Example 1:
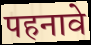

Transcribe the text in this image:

पहनावे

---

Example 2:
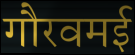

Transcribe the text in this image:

गौरवमई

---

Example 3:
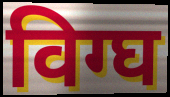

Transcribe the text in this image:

विग्घ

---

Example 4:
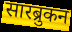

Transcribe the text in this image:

सारब्रुकन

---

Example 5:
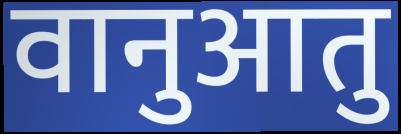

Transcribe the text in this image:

वानुआतु